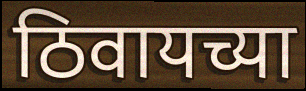
ठिवायच्या